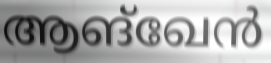
ആങ്ഖേൻ